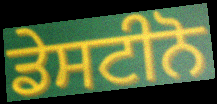
ਡੇਸਟੀਨੋ